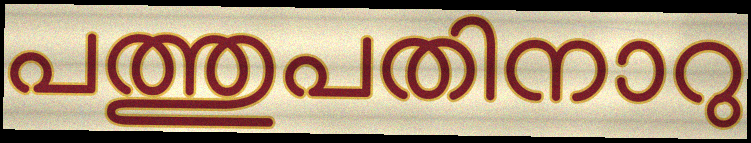
പത്തുപതിനാറു